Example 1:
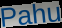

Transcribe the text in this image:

Pahu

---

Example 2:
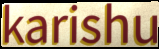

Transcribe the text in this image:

karishu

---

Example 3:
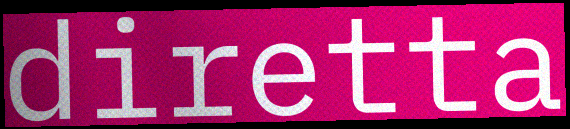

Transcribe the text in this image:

diretta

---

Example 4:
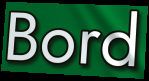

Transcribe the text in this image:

Bord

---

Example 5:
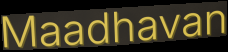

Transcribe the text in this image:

Maadhavan